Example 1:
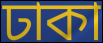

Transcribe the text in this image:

ঢাকা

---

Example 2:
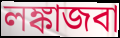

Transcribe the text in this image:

লঙ্কাজবা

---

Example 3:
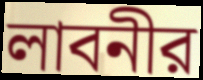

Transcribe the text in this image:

লাবনীর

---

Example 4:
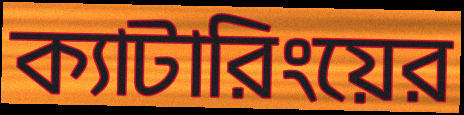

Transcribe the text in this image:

ক্যাটারিংয়ের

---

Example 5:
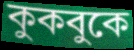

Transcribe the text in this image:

কুকবুকে